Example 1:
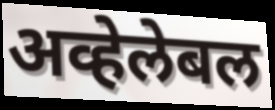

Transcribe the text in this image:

अव्हेलेबल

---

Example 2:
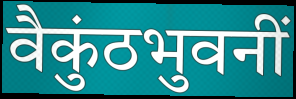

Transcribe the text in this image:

वैकुंठभुवनीं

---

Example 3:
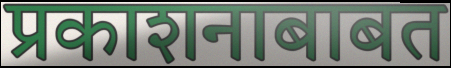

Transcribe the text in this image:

प्रकाशनाबाबत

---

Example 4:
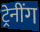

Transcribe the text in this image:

ट्रेनींग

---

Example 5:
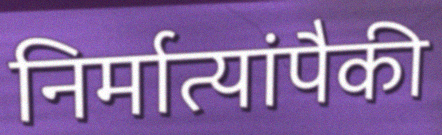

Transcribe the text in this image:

निर्मात्यांपैकी